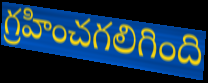
గ్రహించగలిగింది